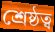
শ্রেষ্ঠত্ব